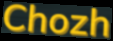
Chozh